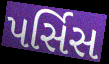
પર્સિસ